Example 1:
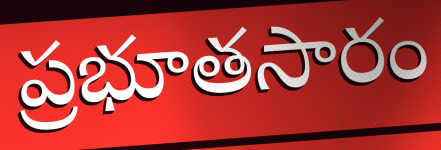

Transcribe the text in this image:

ప్రభూతసారం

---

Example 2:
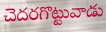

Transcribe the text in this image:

చెదరగొట్టువాడు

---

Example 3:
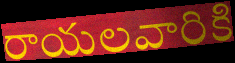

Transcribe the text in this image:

రాయలవారికి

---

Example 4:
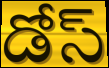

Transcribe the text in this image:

డోస్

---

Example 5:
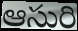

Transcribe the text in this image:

ఆసురి